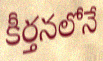
కీర్తనలోనే